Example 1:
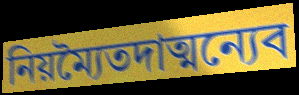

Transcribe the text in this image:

নিয়ম্যৈতদাত্মন্যেব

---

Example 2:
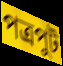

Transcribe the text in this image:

পত্রপুট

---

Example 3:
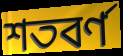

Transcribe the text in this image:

শতবর্ণ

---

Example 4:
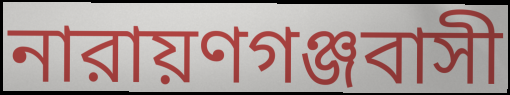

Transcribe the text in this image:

নারায়ণগঞ্জবাসী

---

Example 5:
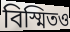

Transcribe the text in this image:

বিস্মিতও